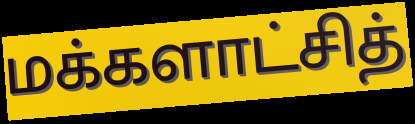
மக்களாட்சித்